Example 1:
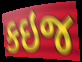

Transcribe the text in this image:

કઇજ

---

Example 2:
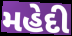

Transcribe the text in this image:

મહેદી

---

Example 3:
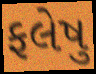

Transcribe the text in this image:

ફલેષુ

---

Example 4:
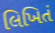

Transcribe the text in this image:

લિખિતં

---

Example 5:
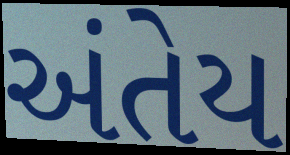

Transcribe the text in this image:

અંતેય